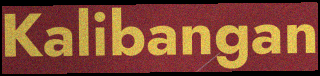
Kalibangan